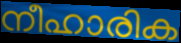
നീഹാരിക